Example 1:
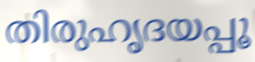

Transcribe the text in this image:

തിരുഹൃദയപ്പൂ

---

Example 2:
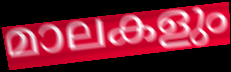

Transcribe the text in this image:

മാലകളും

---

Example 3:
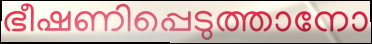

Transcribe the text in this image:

ഭീഷണിപ്പെടുത്താനോ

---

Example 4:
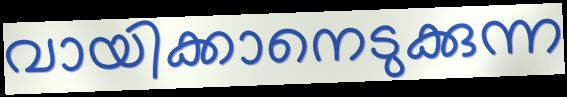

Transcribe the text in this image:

വായിക്കാനെടുക്കുന്ന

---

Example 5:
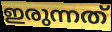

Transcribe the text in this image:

ഇരുന്നത്